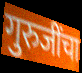
गुरुजींचा